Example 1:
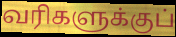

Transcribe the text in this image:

வரிகளுக்குப்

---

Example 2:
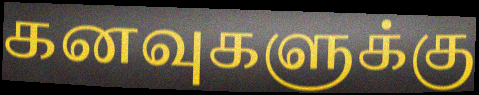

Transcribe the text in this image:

கனவுகளுக்கு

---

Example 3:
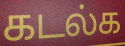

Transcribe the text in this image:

கடல்க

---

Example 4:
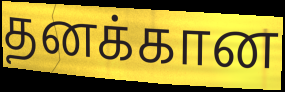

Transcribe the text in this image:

தனக்கான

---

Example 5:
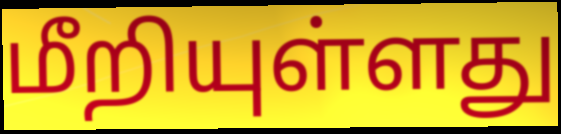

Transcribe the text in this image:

மீறியுள்ளது